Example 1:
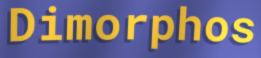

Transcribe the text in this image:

Dimorphos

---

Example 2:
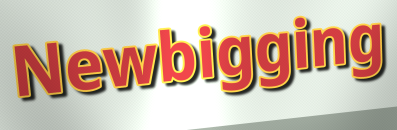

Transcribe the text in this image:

Newbigging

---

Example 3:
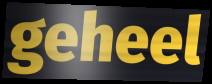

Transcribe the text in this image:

geheel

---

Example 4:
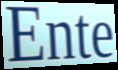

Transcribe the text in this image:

Ente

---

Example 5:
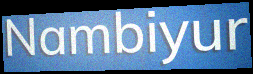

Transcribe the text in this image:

Nambiyur